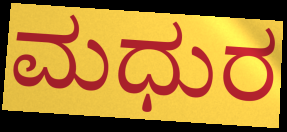
ಮಧುರ